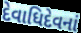
દેવાધિદેવનાં